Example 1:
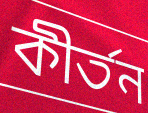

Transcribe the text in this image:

কীৰ্তন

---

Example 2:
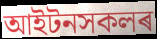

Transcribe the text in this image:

আইটনসকলৰ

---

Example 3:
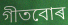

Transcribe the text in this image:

গীতবোৰ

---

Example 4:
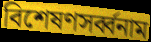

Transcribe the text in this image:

বিশেষণসৰ্ব্বনাম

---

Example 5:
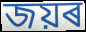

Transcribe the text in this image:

জয়ৰ